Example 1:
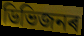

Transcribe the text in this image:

ডিভিজনৰ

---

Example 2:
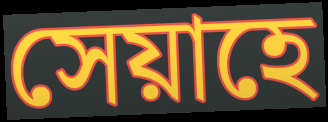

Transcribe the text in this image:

সেয়াহে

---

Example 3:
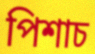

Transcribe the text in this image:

পিশাচ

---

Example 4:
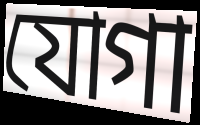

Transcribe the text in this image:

যোগা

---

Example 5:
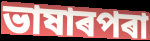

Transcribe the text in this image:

ভাষাৰপৰা